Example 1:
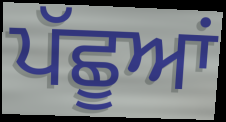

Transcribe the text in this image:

ਪੱਛੂਆਂ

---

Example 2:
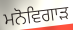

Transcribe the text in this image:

ਮਨੋਵਿਗਾੜ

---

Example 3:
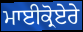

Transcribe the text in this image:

ਮਾਈਕ੍ਰੋਏਰੇ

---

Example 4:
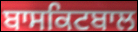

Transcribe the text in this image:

ਬਾਸਕਿਟਬਾਲ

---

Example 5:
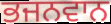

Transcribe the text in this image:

ਭਜਨਵਾਨ